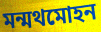
মন্মথমোহন